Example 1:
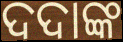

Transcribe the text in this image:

ଦଦାଙ୍କ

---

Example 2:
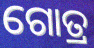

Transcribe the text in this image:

ଗୋତ୍ର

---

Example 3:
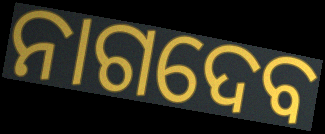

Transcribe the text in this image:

ନାଗଦେବ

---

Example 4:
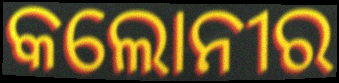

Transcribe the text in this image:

କଲୋନୀର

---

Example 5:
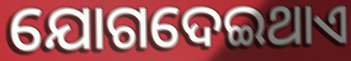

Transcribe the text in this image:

ଯୋଗଦେଇଥାଏ